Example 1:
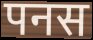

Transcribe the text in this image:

पनस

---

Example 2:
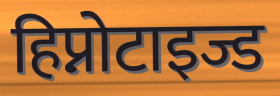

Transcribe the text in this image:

हिप्नोटाइज्ड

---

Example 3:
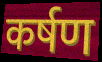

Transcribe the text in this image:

कर्षण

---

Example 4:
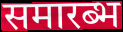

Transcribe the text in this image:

समारब्भ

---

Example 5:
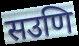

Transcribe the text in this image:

सउणि